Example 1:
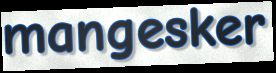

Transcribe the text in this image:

mangesker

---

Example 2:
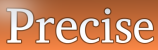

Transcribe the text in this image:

Precise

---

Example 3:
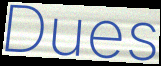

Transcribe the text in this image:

Dues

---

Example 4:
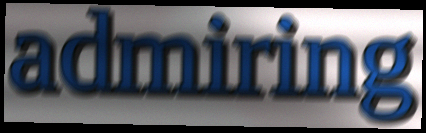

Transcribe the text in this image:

admiring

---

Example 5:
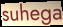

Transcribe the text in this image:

suhega